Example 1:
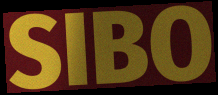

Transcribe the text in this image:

SIBO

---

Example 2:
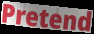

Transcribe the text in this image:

Pretend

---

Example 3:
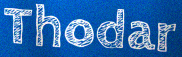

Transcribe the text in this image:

Thodar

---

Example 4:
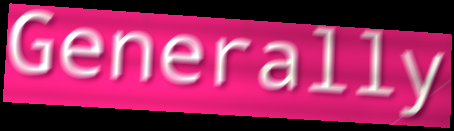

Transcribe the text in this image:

Generally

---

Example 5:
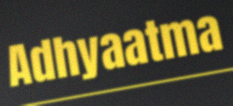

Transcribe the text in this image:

Adhyaatma